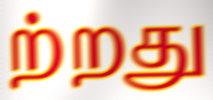
ற்றது